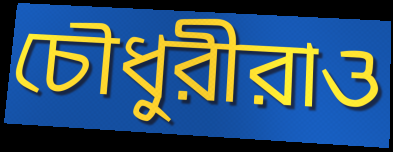
চৌধুরীরাও